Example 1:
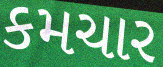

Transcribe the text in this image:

કમચાર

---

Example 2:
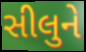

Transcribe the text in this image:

સીલુને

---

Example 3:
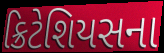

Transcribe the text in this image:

ક્રિટેશિયસના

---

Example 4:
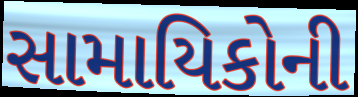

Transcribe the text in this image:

સામાયિકોની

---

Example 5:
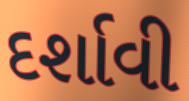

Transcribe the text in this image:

દર્શાવી